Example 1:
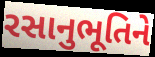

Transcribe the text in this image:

રસાનુભૂતિને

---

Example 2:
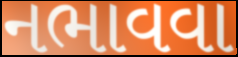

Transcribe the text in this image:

નભાવવા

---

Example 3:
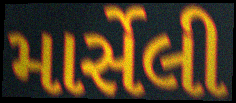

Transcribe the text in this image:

માર્સેલી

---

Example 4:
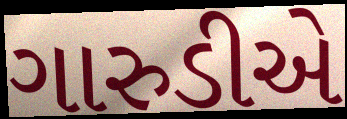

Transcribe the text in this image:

ગારુડીએ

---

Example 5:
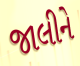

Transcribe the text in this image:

જાલીને